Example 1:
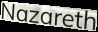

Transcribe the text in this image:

Nazareth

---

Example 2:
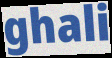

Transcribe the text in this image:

ghali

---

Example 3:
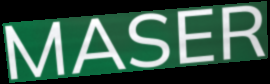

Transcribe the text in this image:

MASER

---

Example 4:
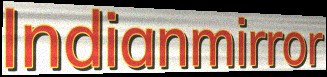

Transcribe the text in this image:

Indianmirror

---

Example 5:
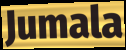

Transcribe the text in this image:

Jumala